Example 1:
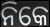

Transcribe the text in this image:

ନିକେ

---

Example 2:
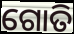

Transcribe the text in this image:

ଗୋତି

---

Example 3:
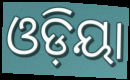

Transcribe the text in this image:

ଓଡ଼ିୟା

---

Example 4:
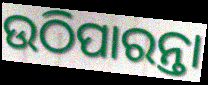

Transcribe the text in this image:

ଉଠିପାରନ୍ତା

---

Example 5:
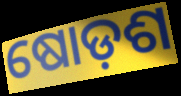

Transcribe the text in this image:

ଷୋଡ଼ଶ